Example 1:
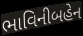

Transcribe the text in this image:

ભાવિનીબહેન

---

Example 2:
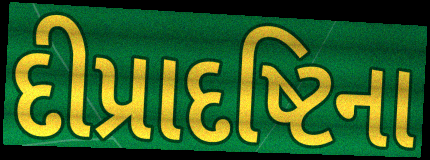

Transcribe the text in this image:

દીપ્રાદષ્ટિના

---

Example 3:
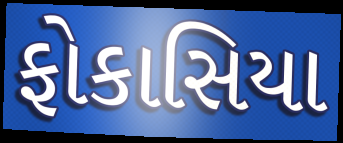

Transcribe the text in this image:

ફોકાસિયા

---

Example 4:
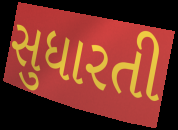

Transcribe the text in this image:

સુધારતી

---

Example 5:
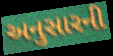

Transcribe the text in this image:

અનુસારની